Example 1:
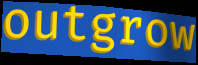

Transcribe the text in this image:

outgrow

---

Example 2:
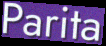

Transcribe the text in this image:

Parita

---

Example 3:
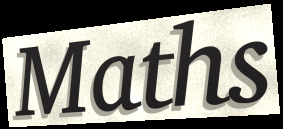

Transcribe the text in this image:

Maths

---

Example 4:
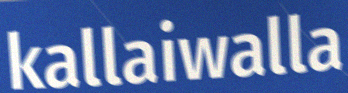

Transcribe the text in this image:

kallaiwalla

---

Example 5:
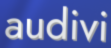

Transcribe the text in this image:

audivi